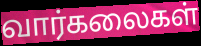
வார்கலைகள்